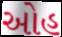
ઓહ